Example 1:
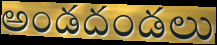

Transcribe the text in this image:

అండదండలు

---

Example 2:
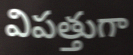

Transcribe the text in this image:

విపత్తుగా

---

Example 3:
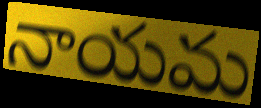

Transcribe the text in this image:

నాయమ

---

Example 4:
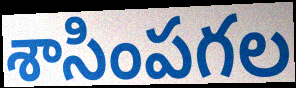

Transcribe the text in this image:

శాసింపగల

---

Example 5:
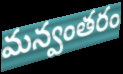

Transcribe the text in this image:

మన్వంతరం